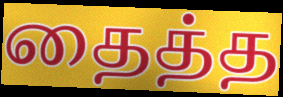
தைத்த